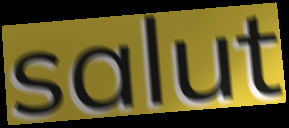
salut